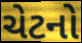
ચેટનો